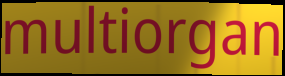
multiorgan